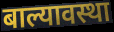
बाल्यावस्था